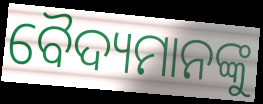
ବୈଦ୍ୟମାନଙ୍କୁ